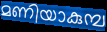
മണിയാകുമ്പ